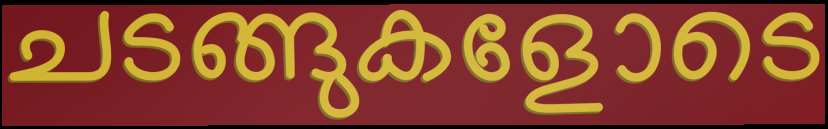
ചടങ്ങുകളോടെ